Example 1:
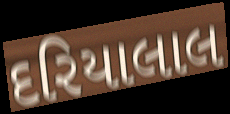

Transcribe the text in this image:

દરિયાલાલ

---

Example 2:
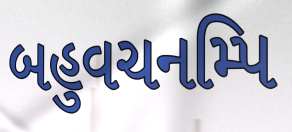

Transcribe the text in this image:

બહુવચનમ્પિ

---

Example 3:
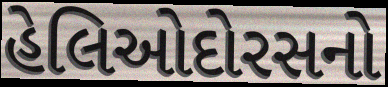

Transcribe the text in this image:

હેલિઓદોરસનો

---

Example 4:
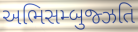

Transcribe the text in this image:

અભિસમ્બુજ્ઝતિ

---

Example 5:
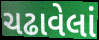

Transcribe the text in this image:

ચઢાવેલાં